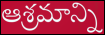
ఆశ్రమాన్ని